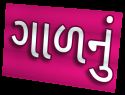
ગાળનું